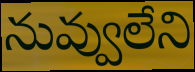
నువ్వులేని